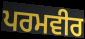
ਪਰਮਵੀਰ